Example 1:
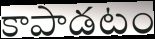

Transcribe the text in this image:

కాపాడటం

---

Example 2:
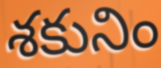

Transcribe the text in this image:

శకునిం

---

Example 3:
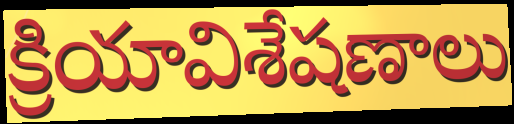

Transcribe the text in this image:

క్రియావిశేషణాలు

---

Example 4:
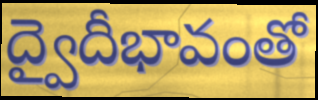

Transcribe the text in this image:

ద్వైదీభావంతో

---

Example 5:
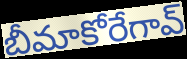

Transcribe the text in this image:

బీమాకోరేగావ్